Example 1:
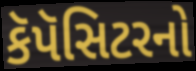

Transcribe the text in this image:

કૅપૅસિટરનો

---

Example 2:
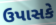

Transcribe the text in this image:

ઉપાસકે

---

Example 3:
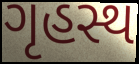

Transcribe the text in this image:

ગૃહસ્થ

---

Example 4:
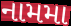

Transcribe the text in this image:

નામમા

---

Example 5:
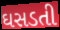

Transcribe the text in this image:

ઘસડતી